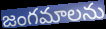
జంగమాలను